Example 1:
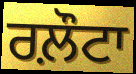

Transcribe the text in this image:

ਰਲ਼ੌਟਾ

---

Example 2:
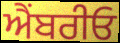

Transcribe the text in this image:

ਐੰਬਰੀਓ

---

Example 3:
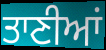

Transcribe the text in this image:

ਤਾਣੀਆਂ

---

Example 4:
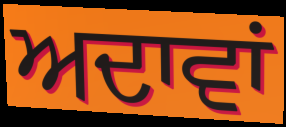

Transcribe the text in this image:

ਅਦਾਵਾਂ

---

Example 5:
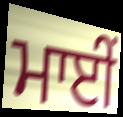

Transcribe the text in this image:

ਮਾਈਂ